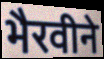
भैरवीने